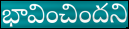
భావించిందని